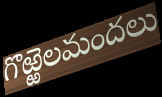
గొఱ్ఱెలమందలు